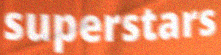
superstars